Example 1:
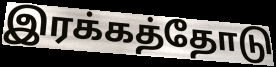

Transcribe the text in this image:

இரக்கத்தோடு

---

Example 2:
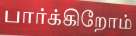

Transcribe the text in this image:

பார்க்கிறோம்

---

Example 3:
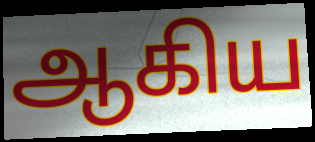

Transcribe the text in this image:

ஆகிய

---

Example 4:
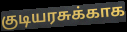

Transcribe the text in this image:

குடியரசுக்காக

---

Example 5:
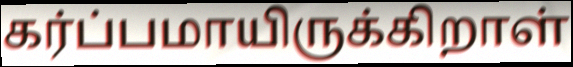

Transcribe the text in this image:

கர்ப்பமாயிருக்கிறாள்